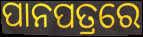
ପାନପତ୍ରରେ